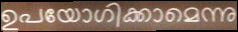
ഉപയോഗിക്കാമെന്നു